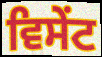
ਵਿਸੇਂਟ